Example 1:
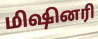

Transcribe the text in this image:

மிஷினரி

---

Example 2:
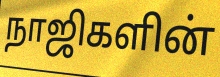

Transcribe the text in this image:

நாஜிகளின்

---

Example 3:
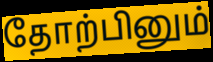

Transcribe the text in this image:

தோற்பினும்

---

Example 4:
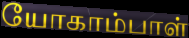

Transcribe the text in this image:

யோகாம்பாள்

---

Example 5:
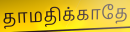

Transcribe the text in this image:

தாமதிக்காதே